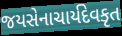
જયસેનાચાર્યદેવકૃત